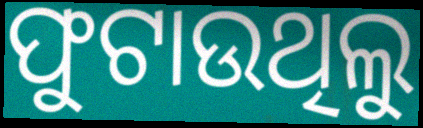
ଫୁଟାଉଥିଲୁ